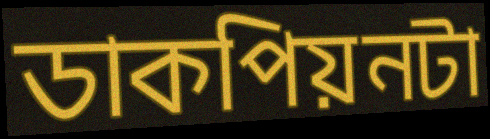
ডাকপিয়নটা